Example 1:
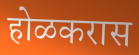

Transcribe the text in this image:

होळकरास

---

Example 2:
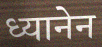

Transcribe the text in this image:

ध्यानेन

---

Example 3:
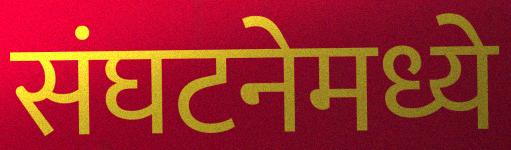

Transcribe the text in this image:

संघटनेमध्ये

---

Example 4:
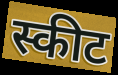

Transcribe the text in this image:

स्कीट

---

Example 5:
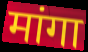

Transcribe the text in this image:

मांगा